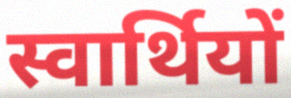
स्वार्थियों